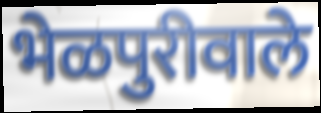
भेळपुरीवाले